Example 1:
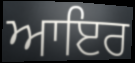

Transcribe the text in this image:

ਆਇਰ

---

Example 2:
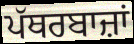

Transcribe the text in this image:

ਪੱਥਰਬਾਜ਼ਾਂ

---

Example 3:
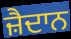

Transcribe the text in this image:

ਜ਼ੈਦਾਨ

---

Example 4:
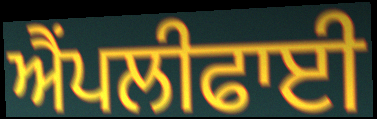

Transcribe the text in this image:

ਐਂਪਲੀਫਾਈ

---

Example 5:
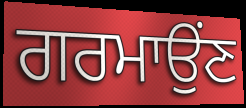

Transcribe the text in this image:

ਗਰਮਾਉਂਣ